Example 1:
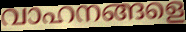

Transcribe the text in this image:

വാഹനങ്ങളെ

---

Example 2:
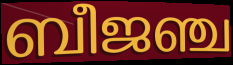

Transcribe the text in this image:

ബീജഞ്ച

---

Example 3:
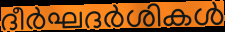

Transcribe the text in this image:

ദീർഘദർശികൾ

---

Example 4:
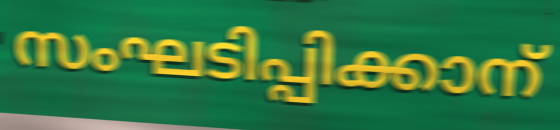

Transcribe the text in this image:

സംഘടിപ്പിക്കാന്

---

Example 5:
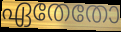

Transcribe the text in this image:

ഏതേതോ